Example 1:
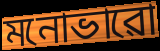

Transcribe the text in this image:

মনোভাৱো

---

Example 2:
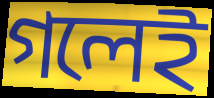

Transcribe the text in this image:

গলেই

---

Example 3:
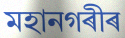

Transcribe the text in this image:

মহানগৰীৰ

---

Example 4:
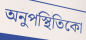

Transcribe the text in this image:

অনুপস্থিতিকো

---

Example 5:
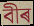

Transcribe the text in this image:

বীৰ